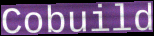
Cobuild